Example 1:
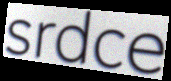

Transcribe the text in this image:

srdce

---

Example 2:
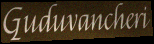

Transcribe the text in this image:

Guduvancheri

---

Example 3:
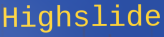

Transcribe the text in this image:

Highslide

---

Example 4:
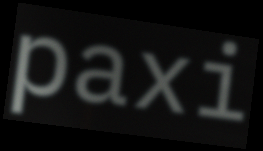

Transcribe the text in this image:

paxi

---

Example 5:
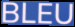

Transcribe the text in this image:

BLEU